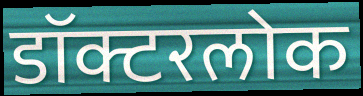
डॉक्टरलोक